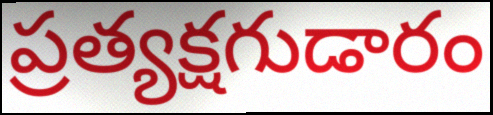
ప్రత్యక్షగుడారం